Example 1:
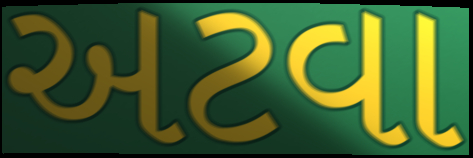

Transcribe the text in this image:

અટવા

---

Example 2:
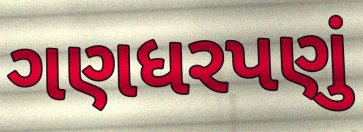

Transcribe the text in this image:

ગણધરપણું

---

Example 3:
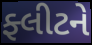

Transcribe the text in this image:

ફ્લીટને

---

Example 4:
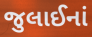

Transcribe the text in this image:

જુલાઈનાં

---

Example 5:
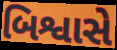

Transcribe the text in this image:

બિશ્વાસે